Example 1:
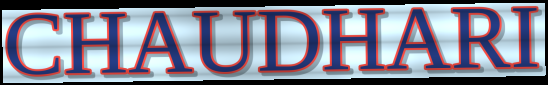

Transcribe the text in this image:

CHAUDHARI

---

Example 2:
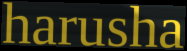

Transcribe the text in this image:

harusha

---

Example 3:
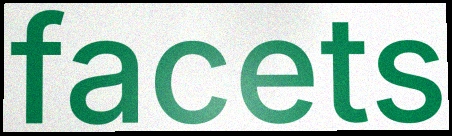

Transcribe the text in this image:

facets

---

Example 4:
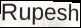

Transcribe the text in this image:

Rupesh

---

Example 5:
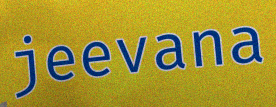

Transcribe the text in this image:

jeevana